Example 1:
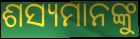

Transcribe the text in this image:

ଶସ୍ୟମାନଙ୍କୁ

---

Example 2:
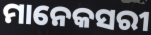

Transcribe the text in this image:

ମାନେକସରୀ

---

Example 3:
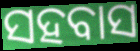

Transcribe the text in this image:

ସହବାସ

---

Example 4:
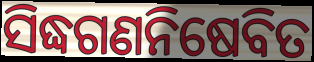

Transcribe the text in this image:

ସିଦ୍ଧଗଣନିଷେବିତ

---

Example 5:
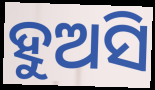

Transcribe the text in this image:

ହୁଅସି